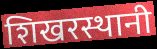
शिखरस्थानी